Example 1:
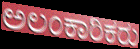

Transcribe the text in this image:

ಅಲಂಕಾರಿಕರು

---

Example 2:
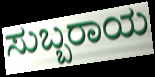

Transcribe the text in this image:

ಸುಬ್ಬರಾಯ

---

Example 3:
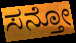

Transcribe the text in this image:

ಸನ್ತೋ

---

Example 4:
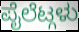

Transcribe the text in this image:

ಪೈಲೆಟ್ಗಳು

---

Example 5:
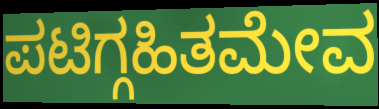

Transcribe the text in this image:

ಪಟಿಗ್ಗಹಿತಮೇವ